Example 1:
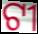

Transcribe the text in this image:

ଟୀ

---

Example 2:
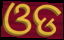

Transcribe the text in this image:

ଓଡ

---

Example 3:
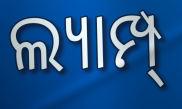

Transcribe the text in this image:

ଲ୍ୟାମ୍ପ୍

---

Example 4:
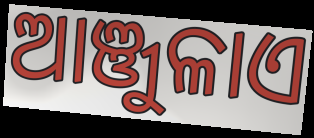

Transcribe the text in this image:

ଆଞ୍ଜୁଳାଏ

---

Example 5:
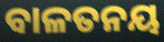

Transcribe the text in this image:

ବାଳତନୟ